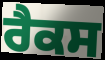
ਰੈਕਸ